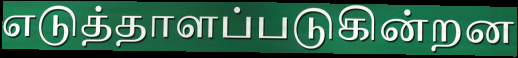
எடுத்தாளப்படுகின்றன